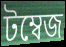
টম্বেজ